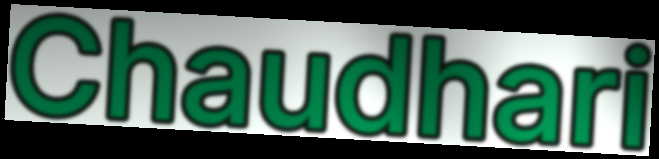
Chaudhari